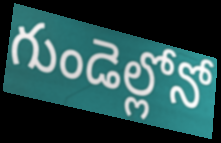
గుండెల్లోనో